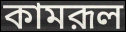
কামরূল